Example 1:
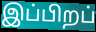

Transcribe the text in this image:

இப்பிறப்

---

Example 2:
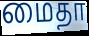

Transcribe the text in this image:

மைதா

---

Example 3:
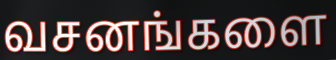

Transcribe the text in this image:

வசனங்களை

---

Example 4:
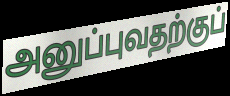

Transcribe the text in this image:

அனுப்புவதற்குப்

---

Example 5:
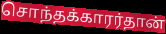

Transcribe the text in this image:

சொந்தக்காரர்தான்